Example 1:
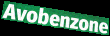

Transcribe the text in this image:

Avobenzone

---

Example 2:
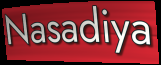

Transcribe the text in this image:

Nasadiya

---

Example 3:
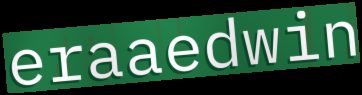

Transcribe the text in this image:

eraaedwin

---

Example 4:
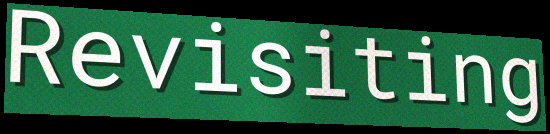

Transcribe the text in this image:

Revisiting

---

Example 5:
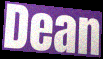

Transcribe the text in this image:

Dean